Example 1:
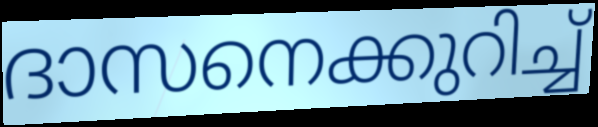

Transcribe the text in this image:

ദാസനെക്കുറിച്ച്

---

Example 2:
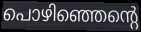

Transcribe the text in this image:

പൊഴിഞ്ഞെന്റെ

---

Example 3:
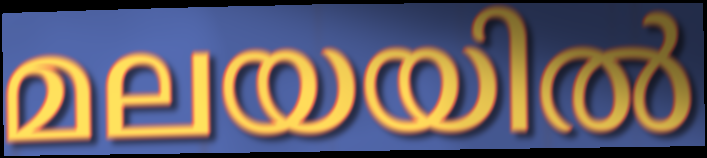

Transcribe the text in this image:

മലയയിൽ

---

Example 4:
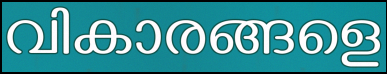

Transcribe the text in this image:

വികാരങ്ങളെ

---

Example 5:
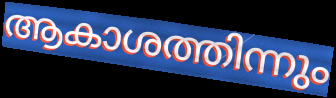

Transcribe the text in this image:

ആകാശത്തിന്നും